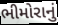
ભીમોરાનું